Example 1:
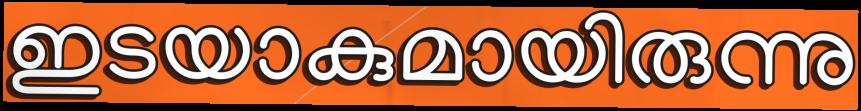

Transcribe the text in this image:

ഇടയാകുമായിരുന്നു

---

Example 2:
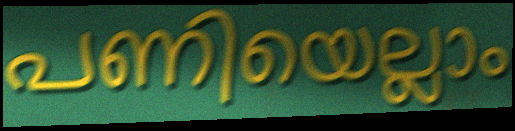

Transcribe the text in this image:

പണിയെല്ലാം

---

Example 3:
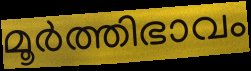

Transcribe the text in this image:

മൂർത്തിഭാവം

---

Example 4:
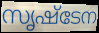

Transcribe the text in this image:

സൃഷ്ടേന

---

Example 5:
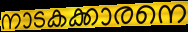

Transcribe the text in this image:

നാടകക്കാരനെ